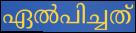
ഏൽപിച്ചത്